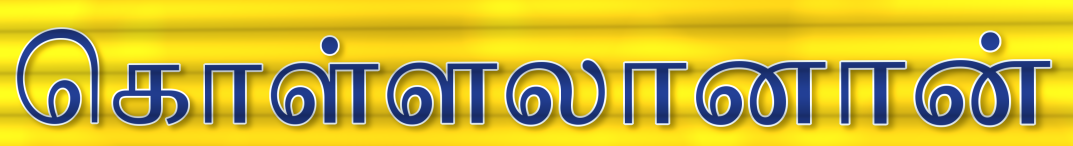
கொள்ளலானான்